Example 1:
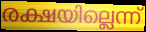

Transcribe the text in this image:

രക്ഷയില്ലെന്ന്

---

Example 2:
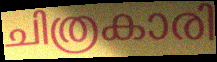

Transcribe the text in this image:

ചിത്രകാരി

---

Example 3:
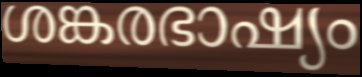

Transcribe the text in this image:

ശങ്കരഭാഷ്യം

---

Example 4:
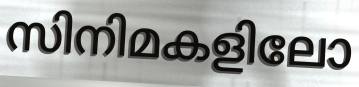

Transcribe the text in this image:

സിനിമകളിലോ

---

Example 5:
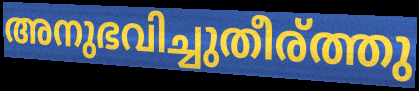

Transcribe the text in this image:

അനുഭവിച്ചുതീര്ത്തു